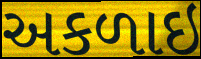
અકળાઇ